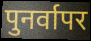
पुनर्वापर